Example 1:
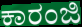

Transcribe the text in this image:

ಕಾರಂಜಿ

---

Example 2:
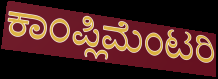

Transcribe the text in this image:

ಕಾಂಪ್ಲಿಮೆಂಟರಿ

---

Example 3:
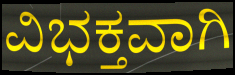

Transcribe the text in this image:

ವಿಭಕ್ತವಾಗಿ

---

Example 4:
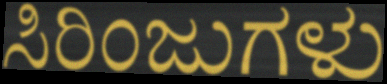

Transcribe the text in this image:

ಸಿರಿಂಜುಗಳು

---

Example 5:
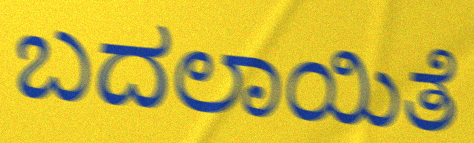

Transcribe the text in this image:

ಬದಲಾಯಿತೆ